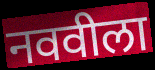
नववीला